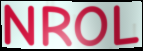
NROL